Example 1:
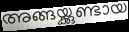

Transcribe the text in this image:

അങ്ങയ്ക്കുണ്ടായ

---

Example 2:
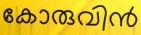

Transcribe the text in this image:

കോരുവിൻ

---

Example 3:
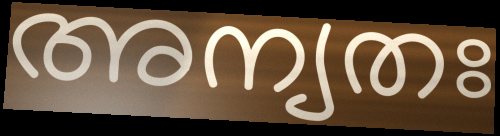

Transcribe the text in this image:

അന്യതഃ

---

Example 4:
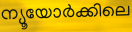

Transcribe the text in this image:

ന്യൂയോർക്കിലെ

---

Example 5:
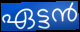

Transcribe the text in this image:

ഏട്ടൻ